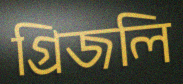
গ্রিজলি